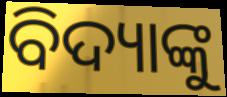
ବିଦ୍ୟାଙ୍କୁ